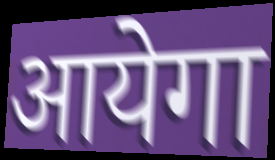
आयेगा